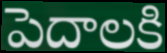
పెదాలకి